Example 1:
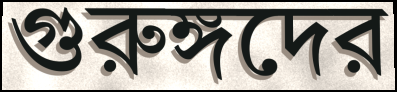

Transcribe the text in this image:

গুরুঙ্গদের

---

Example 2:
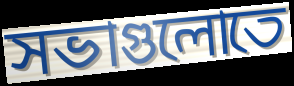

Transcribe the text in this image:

সভাগুলোতে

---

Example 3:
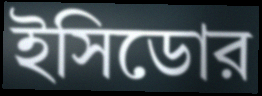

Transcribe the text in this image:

ইসিডোর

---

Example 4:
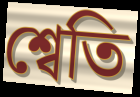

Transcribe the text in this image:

শ্বেতি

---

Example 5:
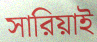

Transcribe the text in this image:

সারিয়াই